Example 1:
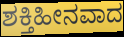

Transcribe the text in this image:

ಶಕ್ತಿಹೀನವಾದ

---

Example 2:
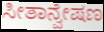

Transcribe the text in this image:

ಸೀತಾನ್ವೇಷಣ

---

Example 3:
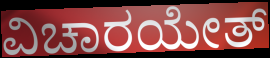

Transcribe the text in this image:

ವಿಚಾರಯೇತ್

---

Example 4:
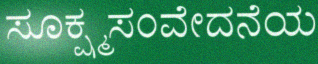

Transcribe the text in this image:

ಸೂಕ್ಷ್ಮಸಂವೇದನೆಯ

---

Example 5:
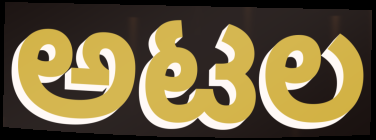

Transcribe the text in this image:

ಅಟಲ